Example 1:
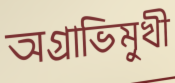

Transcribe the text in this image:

অগ্রাভিমুখী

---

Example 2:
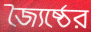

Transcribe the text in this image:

জ্যৈষ্ঠের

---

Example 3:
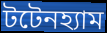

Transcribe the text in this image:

টটেনহ্যাম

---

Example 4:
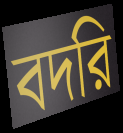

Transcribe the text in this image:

বদরি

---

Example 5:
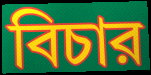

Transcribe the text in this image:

বিচার